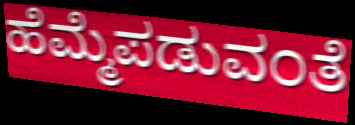
ಹೆಮ್ಮೆಪಡುವಂತೆ